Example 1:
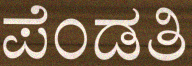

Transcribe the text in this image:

ಪೆಂಡತಿ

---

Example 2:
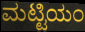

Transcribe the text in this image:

ಮಟ್ಟಿಯಂ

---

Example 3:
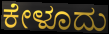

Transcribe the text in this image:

ಕೇಳೂದು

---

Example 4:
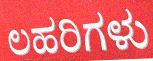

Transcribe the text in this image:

ಲಹರಿಗಳು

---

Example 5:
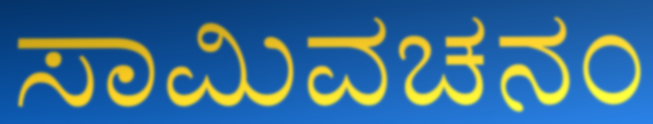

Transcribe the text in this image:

ಸಾಮಿವಚನಂ